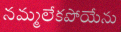
నమ్మలేకపోయేను